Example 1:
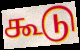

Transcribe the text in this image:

கூடு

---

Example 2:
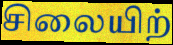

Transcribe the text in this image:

சிலையிற்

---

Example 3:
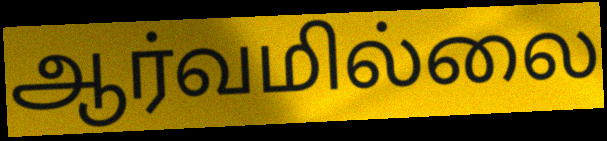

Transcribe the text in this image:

ஆர்வமில்லை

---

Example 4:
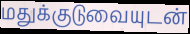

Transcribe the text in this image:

மதுக்குடுவையுடன்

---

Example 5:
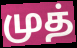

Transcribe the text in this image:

முத்